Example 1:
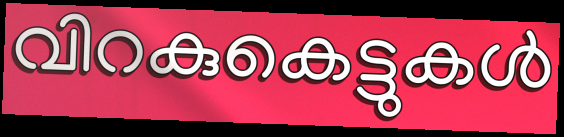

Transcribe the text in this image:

വിറകുകെട്ടുകൾ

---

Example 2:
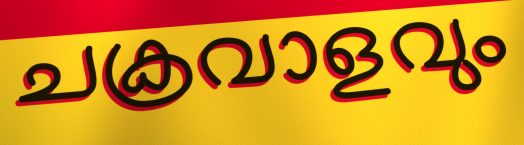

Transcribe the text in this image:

ചക്രവാളവും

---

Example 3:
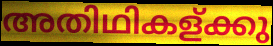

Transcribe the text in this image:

അതിഥികള്ക്കു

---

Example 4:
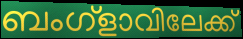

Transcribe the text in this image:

ബംഗ്ളാവിലേക്ക്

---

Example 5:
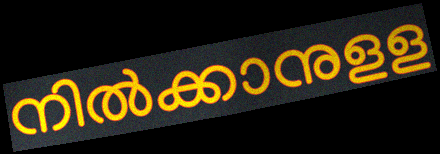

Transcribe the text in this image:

നിൽക്കാനുളള